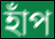
হাঁপ